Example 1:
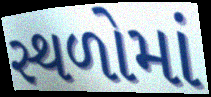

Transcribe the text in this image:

સ્થળોમાં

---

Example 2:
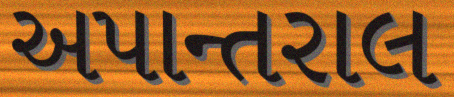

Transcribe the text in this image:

અપાન્તરાલ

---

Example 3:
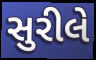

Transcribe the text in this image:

સુરીલે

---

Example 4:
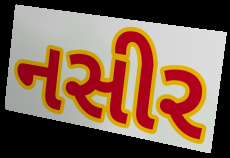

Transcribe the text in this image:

નસીર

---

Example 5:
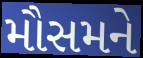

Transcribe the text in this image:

મૌસમને